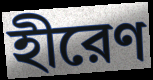
হীরেণ